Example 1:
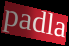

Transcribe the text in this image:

padla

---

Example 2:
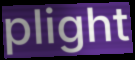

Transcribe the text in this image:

plight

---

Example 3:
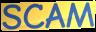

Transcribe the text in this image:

SCAM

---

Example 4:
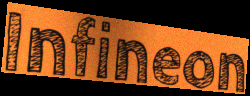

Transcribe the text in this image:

Infineon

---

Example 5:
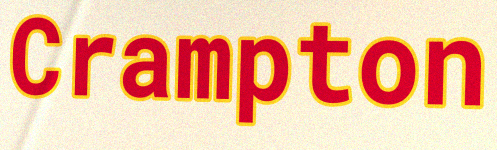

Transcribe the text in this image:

Crampton